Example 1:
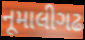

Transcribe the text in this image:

નૂમાલીગઢ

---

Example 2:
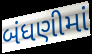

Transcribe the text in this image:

બંધણીમાં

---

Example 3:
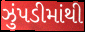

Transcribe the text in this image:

ઝુંપડીમાંથી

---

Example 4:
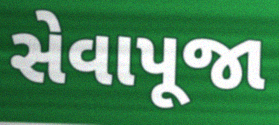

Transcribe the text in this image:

સેવાપૂજા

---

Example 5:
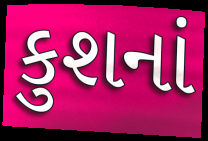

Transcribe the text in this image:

કુશનાં